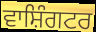
ਵਾਸ਼ਿੰਗਟਰ